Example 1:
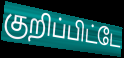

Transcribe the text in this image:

குறிப்பிட்டே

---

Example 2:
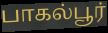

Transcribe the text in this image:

பாகல்பூர்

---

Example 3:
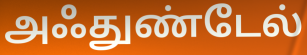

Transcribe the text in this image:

அஃதுண்டேல்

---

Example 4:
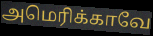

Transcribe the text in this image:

அமெரிக்காவே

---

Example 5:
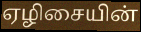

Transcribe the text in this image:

ஏழிசையின்